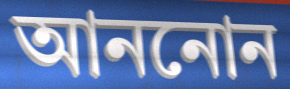
আননোন